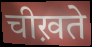
चीख़ते